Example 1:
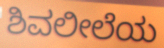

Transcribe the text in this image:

ಶಿವಲೀಲೆಯ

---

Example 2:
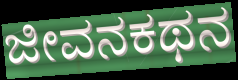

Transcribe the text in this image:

ಜೀವನಕಥನ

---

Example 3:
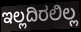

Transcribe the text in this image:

ಇಲ್ಲದಿರಲಿಲ್ಲ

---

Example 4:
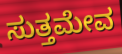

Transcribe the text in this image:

ಸುತ್ತಮೇವ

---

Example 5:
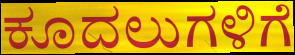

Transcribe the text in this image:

ಕೂದಲುಗಳಿಗೆ